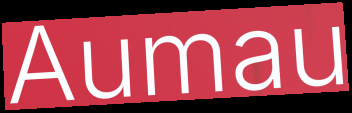
Aumau